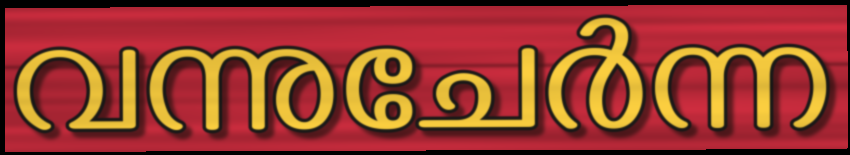
വന്നുചേർന്ന